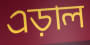
এড়াল